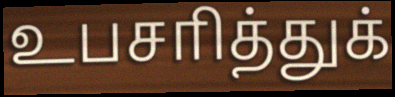
உபசரித்துக்